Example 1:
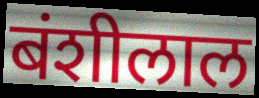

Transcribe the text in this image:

बंशीलाल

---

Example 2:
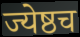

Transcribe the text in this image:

ज्येष्ठच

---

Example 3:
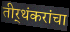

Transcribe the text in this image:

तीर्थंकरांचा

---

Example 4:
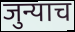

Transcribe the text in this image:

जुन्याच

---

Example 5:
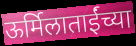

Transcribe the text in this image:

ऊर्मिलाताईंच्या